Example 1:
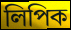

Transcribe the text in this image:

লিপিক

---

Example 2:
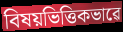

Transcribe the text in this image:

বিষয়ভিত্তিকভাৱে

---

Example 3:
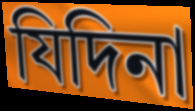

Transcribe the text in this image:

যিদিনা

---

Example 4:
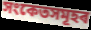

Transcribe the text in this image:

সংকেতসমূহৰ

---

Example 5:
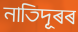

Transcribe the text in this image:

নাতিদূৰৰ